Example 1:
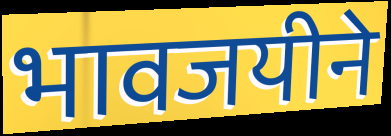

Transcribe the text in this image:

भावजयीने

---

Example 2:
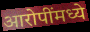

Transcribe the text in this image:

आरोपींमध्ये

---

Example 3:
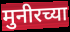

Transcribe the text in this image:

मुनीरच्या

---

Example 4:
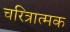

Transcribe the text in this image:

चरित्रात्मक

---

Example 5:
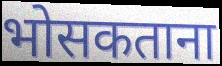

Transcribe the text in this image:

भोसकताना